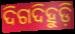
ଦିଗଦିହୁଡ଼ି